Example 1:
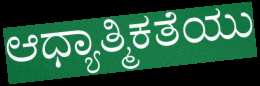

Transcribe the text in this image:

ಆಧ್ಯಾತ್ಮಿಕತೆಯು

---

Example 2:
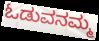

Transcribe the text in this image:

ಓಡುವನಮ್ಮ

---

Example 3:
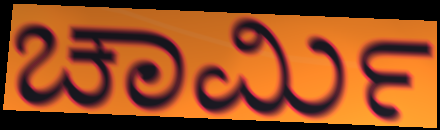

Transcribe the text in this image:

ಚಾರ್ಮಿ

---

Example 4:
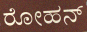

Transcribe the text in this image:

ರೋಹನ್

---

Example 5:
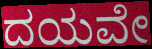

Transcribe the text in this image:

ದಯವೇ